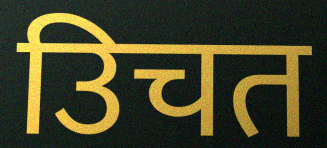
उिचत